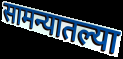
सामन्यातल्या